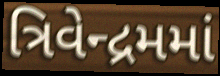
ત્રિવેન્દ્રમમાં